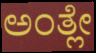
ಅಂತ್ಲೇ